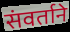
संवर्ताने